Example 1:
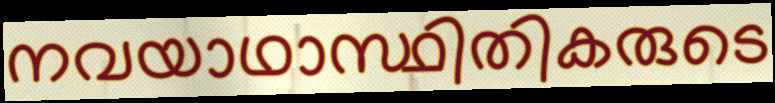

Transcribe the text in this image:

നവയാഥാസ്ഥിതികരുടെ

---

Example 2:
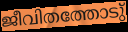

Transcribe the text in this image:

ജീവിതത്തോടു്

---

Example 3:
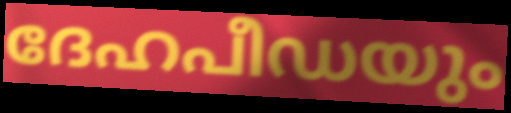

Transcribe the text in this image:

ദേഹപീഡയും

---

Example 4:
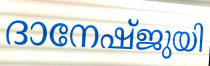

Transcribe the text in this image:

ദാനേഷ്ജുയി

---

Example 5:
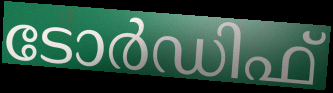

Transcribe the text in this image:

ടോർഡിഫ്